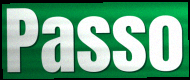
Passo